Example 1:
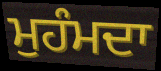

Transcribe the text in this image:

ਮੁਹੰਮਦਾ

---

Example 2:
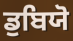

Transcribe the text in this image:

ਡੁਬਿਯੋ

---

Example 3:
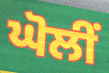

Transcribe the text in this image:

ਘੋਲੀਂ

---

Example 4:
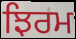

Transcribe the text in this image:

ਝਿਰਮ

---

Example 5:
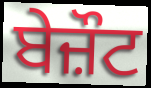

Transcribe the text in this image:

ਬੇਜ਼ੌਟ